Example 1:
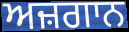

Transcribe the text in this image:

ਅਜ਼ਗਾਨ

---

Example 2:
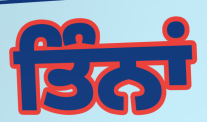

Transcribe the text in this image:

ਤਿੰਨਾਂ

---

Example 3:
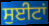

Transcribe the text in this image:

ਸੁਈਟਾਂ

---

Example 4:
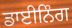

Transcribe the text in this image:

ਡਾਈਨਿੰਗ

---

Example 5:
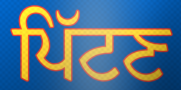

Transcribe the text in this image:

ਪਿੱਟਣ